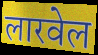
लारवेल